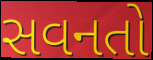
સવનતો